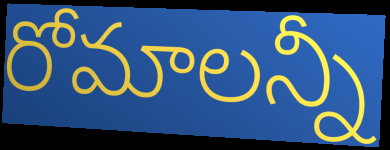
రోమాలన్నీ